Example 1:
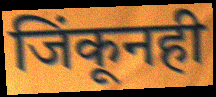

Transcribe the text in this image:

जिंकूनही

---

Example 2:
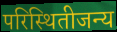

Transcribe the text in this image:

परिस्थितीजन्य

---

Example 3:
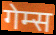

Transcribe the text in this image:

गेम्स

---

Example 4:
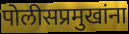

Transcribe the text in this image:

पोलीसप्रमुखांना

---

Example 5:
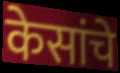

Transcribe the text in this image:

केसांचे